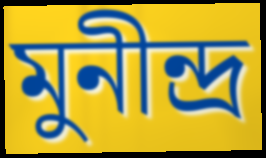
মুনীন্দ্ৰ